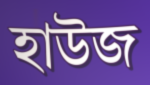
হাউজ